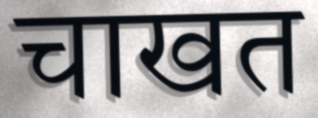
चाखत